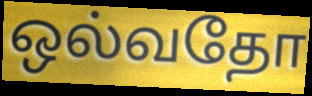
ஒல்வதோ